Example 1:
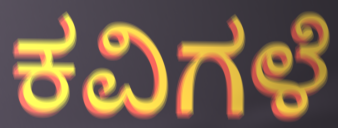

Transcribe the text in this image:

ಕವಿಗಳೆ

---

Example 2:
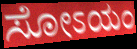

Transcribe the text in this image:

ಸೋಽಯಂ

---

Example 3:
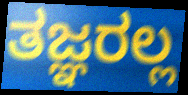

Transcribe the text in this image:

ತಜ್ಞರಲ್ಲ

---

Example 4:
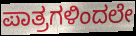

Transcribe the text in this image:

ಪಾತ್ರಗಳಿಂದಲೇ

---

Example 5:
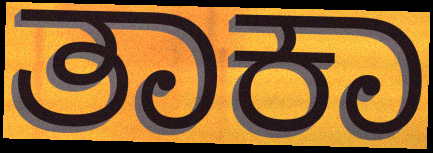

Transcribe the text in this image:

ತಾಕಾ